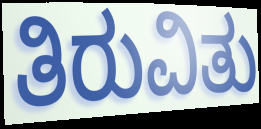
ತಿರುವಿತು